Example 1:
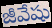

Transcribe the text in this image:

జీవేషు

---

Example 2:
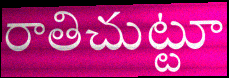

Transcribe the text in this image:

రాతిచుట్టూ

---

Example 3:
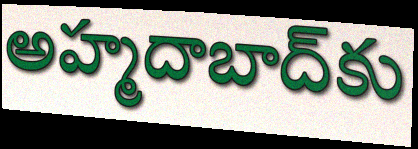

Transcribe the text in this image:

అహ్మదాబాద్‌కు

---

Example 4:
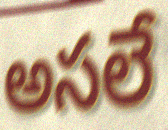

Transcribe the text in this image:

అసలే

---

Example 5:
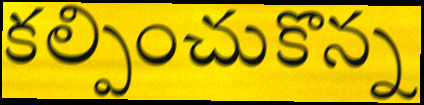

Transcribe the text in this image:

కల్పించుకొన్న